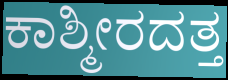
ಕಾಶ್ಮೀರದತ್ತ